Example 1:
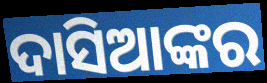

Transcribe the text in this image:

ଦାସିଆଙ୍କର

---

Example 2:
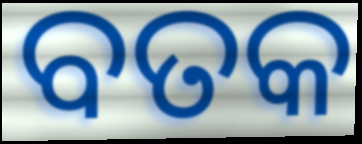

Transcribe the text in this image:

ବତକ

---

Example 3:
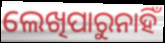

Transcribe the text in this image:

ଲେଖିପାରୁନାହିଁ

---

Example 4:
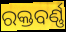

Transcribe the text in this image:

ରକ୍ତବର୍ଣ୍ଣ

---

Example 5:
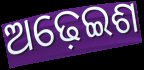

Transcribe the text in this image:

ଅଢ଼େଇଶ